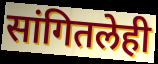
सांगितलेही